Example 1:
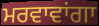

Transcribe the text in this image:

ਮਰਵਾਵਾਂਗਾ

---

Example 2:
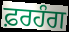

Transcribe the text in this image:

ਫ਼ਰਹੰਗ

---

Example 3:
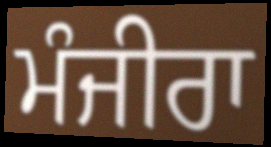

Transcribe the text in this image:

ਮੰਜੀਰਾ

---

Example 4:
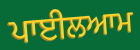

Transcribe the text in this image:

ਪਾਈਲਆਮ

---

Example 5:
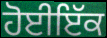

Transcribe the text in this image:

ਹੋਈਇੱਕ